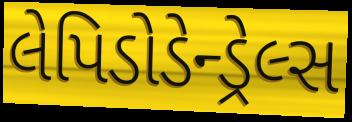
લેપિડોડેન્ડ્રેલ્સ